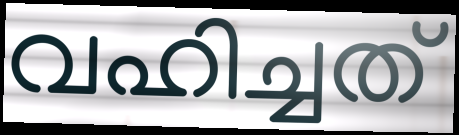
വഹിച്ചത്